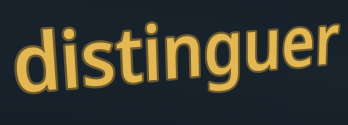
distinguer